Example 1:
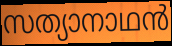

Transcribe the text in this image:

സത്യാനാഥൻ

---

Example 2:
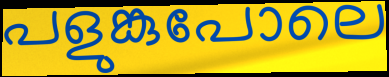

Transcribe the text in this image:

പളുങ്കുപോലെ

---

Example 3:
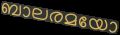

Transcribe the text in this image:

ബാലരമയോ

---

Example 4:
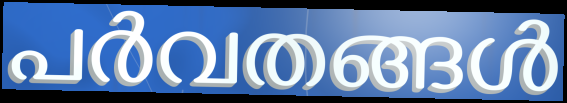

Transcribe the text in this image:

പർവതങ്ങൾ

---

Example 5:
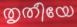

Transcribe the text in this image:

തൃതീയേ